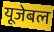
यूजेबल